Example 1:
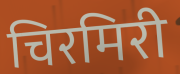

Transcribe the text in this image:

चिरमिरी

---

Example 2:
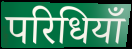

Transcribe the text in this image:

परिधियाँ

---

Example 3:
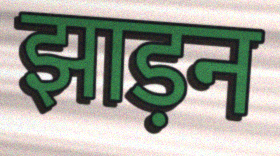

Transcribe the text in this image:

झाड़न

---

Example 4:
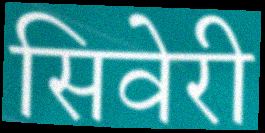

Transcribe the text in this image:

सिवेरी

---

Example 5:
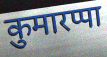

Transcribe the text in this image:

कुमारप्पा